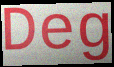
Deg